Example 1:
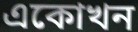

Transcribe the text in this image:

একোখন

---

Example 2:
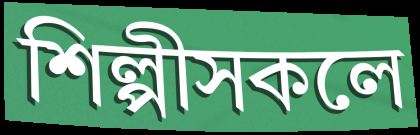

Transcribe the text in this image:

শিল্পীসকলে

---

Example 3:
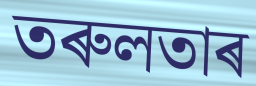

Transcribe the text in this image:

তৰুলতাৰ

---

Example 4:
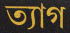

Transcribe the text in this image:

ত্যাগ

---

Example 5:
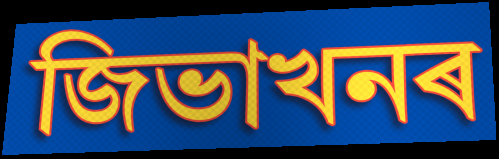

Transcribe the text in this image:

জিভাখনৰ